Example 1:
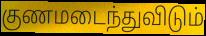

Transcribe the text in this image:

குணமடைந்துவிடும்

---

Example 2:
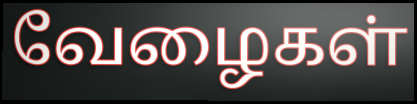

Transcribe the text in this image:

வேழைகள்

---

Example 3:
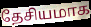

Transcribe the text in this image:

தேசியமாக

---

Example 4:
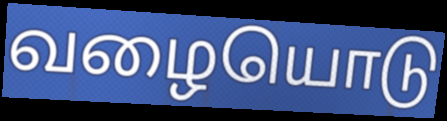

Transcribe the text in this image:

வழையொடு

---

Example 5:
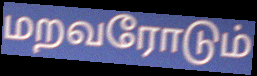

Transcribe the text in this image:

மறவரோடும்